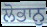
ਲੋਭਾਨੁ